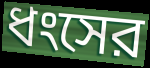
ধংসের